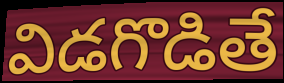
విడగొడితే